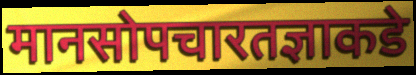
मानसोपचारतज्ञाकडे